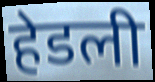
हेडली